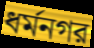
ধর্মনগর